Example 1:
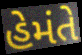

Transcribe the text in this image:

હેમંતે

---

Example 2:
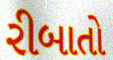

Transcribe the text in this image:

રીબાતો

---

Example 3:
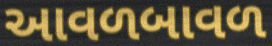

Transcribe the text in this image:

આવળબાવળ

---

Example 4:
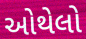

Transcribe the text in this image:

ઓથેલો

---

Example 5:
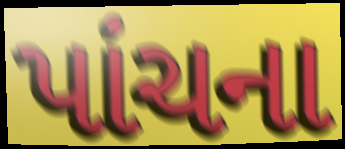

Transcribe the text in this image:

પાંચના